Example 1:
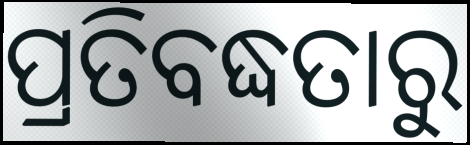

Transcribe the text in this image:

ପ୍ରତିବଦ୍ଧତାରୁ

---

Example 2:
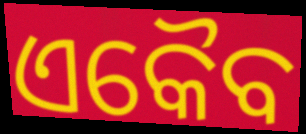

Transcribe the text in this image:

ଏକୈବ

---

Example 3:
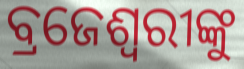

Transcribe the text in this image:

ବ୍ରଜେଶ୍ୱରୀଙ୍କୁ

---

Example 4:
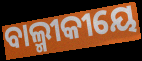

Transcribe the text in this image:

ବାଲ୍ମୀକୀୟେ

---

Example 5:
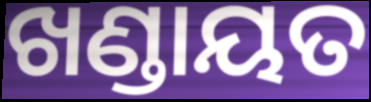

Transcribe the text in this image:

ଖଣ୍ଡାୟତ